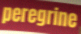
peregrine